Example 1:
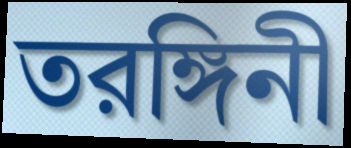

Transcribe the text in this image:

তরঙ্গিনী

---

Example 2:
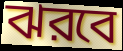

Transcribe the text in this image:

ঝরবে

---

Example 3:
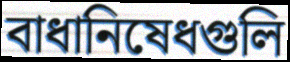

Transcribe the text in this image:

বাধানিষেধগুলি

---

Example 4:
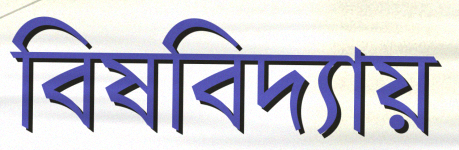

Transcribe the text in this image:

বিষবিদ্যায়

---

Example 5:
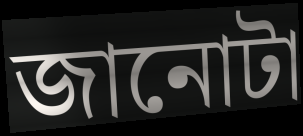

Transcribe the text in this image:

জানোটা